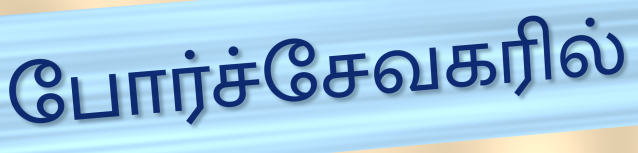
போர்ச்சேவகரில்